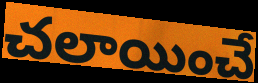
చలాయించే